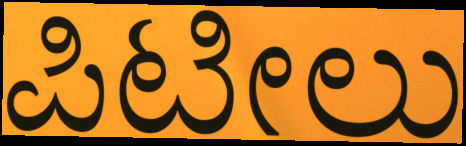
ಪಿಟೀಲು